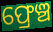
ଫ୍ରେଞ୍ଚ